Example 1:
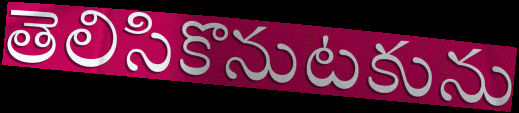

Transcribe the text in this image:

తెలిసికొనుటకును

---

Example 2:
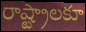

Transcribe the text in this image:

రాష్ట్రాలకూ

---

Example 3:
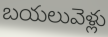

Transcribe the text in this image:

బయలువెళ్లు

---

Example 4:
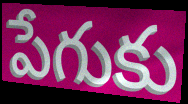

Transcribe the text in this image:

పేగుకు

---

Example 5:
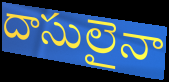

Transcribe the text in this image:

దాసులైనా